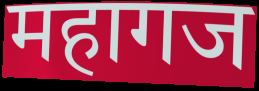
महागज